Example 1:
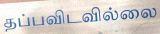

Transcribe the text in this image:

தப்பவிடவில்லை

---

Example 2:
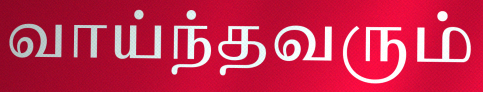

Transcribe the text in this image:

வாய்ந்தவரும்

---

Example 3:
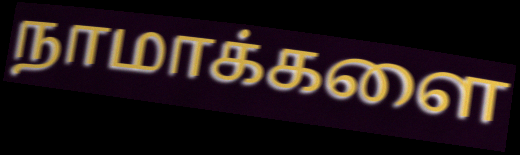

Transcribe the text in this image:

நாமாக்களை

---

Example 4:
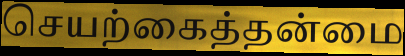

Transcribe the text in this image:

செயற்கைத்தன்மை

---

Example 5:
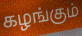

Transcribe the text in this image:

கழங்கும்